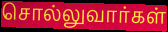
சொல்லுவார்கள்